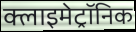
क्लाइमेट्रॉनिक